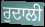
ਰੁਦਾਲੀ